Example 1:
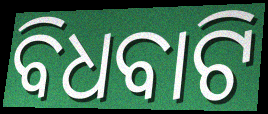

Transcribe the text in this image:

ବିଧବାଟି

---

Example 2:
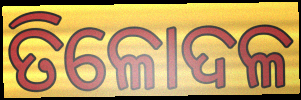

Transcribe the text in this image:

ତିଳୋଦଳ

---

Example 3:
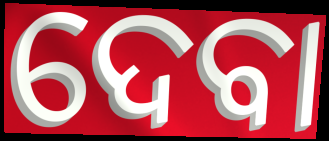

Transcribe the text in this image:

ଦେବା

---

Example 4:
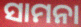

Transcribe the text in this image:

ସାମନା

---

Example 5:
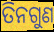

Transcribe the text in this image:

ତିନଗୁଣ